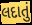
લદાતું